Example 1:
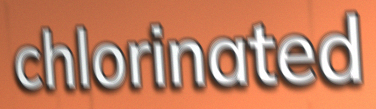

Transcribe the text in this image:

chlorinated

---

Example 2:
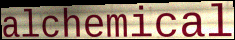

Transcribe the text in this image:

alchemical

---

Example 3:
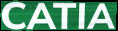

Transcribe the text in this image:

CATIA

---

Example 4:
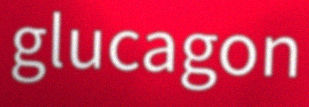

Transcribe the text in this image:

glucagon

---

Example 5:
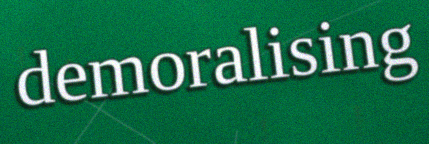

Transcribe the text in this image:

demoralising